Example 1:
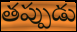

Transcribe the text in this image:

తప్పుడు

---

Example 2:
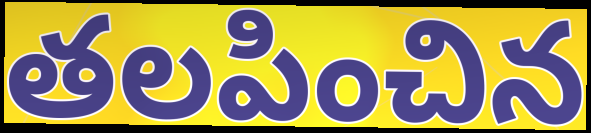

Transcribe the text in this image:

తలపించిన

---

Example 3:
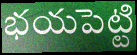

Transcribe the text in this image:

భయపెట్టి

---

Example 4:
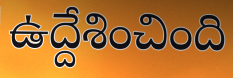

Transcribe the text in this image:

ఉద్దేశించింది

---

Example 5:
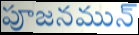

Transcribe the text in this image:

పూజనమున్